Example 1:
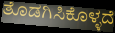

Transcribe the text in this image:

ತೊಡಗಿಸಿಕೊಳ್ಳದೆ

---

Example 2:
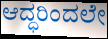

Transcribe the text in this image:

ಆದ್ಧರಿಂದಲೇ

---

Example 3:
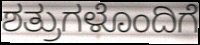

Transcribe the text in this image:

ಶತ್ರುಗಳೊಂದಿಗೆ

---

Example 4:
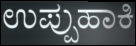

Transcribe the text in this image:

ಉಪ್ಪುಹಾಕಿ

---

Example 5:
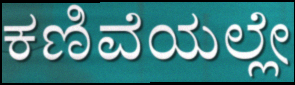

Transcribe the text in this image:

ಕಣಿವೆಯಲ್ಲೇ